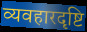
व्यवहारदृष्टि